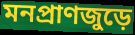
মনপ্রাণজুড়ে